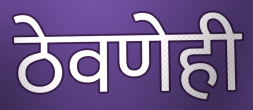
ठेवणेही